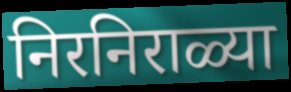
निरनिराळ्या